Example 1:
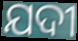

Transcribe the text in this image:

ଯଦୀ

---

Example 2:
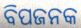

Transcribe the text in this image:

ବିପଜନକ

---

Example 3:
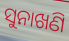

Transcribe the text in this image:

ସୁନାଖଣି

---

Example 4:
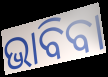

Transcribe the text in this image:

ଭାବିବା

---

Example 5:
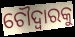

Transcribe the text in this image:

ଚୌଦ୍ୱାରକୁ